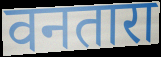
वनतारा